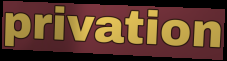
privation